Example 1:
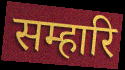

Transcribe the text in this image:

सम्हारि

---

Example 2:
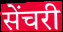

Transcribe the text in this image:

सेंचरी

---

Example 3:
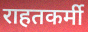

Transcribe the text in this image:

राहतकर्मी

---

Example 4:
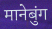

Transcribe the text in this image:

मानेबुंग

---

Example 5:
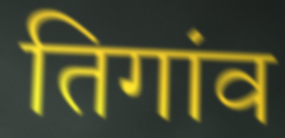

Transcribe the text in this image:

तिगांव